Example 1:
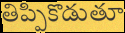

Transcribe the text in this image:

తిప్పికొడుతూ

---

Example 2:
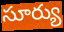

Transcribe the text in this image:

సూర్యు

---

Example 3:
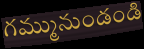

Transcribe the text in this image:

గమ్మునుండండి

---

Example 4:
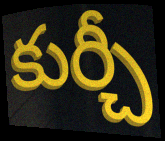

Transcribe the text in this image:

కుర్చీ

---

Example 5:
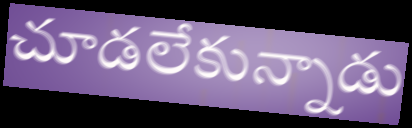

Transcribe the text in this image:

చూడలేకున్నాడు